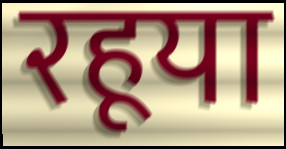
रहूया